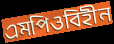
এমপিওবিহীন